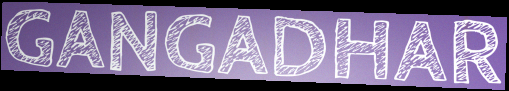
GANGADHAR